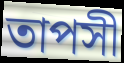
তাপসী